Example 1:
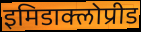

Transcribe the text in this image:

इमिडाक्लोप्रीड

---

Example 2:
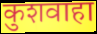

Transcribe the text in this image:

कुशवाहा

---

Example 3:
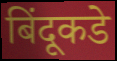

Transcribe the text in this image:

बिंदूकडे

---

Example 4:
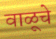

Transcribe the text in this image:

वाळूचे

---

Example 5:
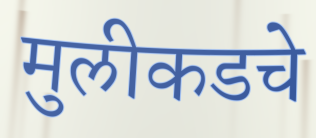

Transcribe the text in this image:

मुलीकडचे